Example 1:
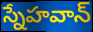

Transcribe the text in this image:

స్నేహవాన్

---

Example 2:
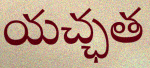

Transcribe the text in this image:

యచ్ఛత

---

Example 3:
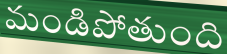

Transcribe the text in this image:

మండిపోతుంది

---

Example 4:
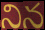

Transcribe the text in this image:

నిన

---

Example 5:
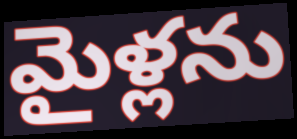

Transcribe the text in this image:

మైళ్లను